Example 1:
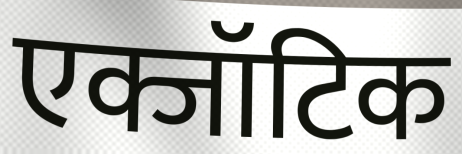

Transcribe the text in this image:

एक्जॉटिक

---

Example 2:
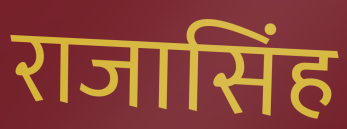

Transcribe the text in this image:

राजासिंह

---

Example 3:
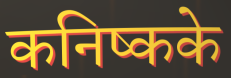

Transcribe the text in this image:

कनिष्कके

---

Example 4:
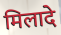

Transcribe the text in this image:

मिलादे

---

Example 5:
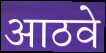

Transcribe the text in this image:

आठवे